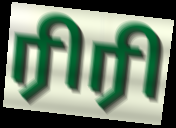
ரிரி